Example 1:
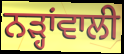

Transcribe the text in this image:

ਨੜ੍ਹਾਂਵਾਲੀ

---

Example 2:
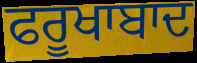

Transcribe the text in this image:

ਫਰੂਖਾਬਾਦ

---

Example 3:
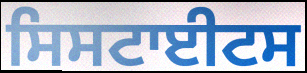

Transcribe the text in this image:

ਸਿਸਟਾਈਟਸ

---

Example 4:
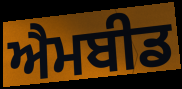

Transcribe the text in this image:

ਐਮਬੀਡ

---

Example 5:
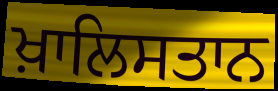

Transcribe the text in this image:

ਖ਼ਾਲਿਸਤਾਨ